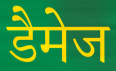
डैमेज